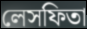
লেসফিতা